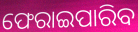
ଫେରାଇପାରିବ